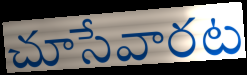
చూసేవారట